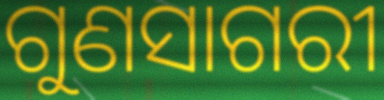
ଗୁଣସାଗରୀ